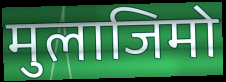
मुलाजिमो